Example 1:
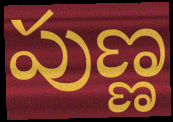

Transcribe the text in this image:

పుణ్ణ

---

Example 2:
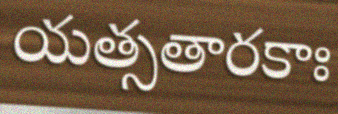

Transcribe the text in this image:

యత్సతారకాః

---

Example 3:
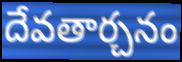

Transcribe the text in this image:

దేవతార్చనం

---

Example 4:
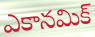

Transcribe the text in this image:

ఎకానమిక్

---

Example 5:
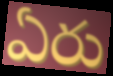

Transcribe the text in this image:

ఏరు